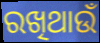
ରଖିଥାଉଁ